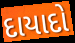
દાયાદો